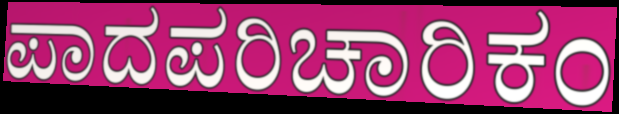
ಪಾದಪರಿಚಾರಿಕಂ